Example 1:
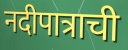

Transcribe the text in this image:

नदीपात्राची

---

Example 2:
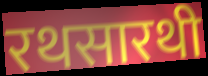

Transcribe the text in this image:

रथसारथी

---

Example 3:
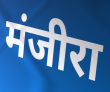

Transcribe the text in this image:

मंजीरा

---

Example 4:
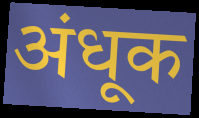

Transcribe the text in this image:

अंधूक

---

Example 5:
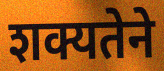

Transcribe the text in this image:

शक्यतेने